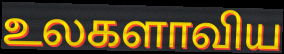
உலகளாவிய